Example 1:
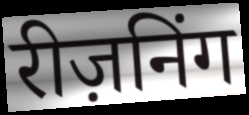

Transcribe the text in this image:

रीज़निंग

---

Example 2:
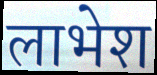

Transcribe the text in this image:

लाभेश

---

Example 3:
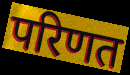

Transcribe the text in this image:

परिणत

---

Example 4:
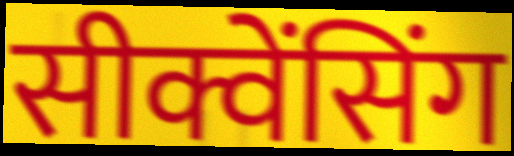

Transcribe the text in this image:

सीक्वेंसिंग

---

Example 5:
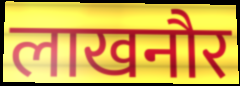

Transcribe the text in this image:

लाखनौर